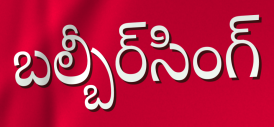
బల్బీర్‌సింగ్